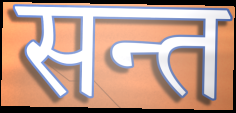
सन्त